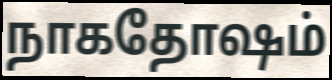
நாகதோஷம்